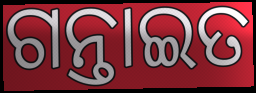
ଗନ୍ତାଇତ